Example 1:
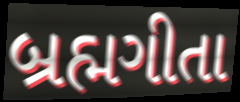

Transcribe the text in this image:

બ્રહ્મગીતા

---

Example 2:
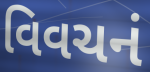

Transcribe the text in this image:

વિવચનં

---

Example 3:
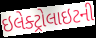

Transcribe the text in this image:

ઇલેક્ટ્રોલાઇટની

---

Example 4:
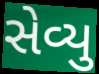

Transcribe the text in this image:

સેવ્યુ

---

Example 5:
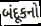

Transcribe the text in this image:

બંદૂકનો